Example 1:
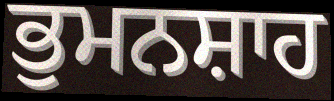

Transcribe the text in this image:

ਭੁਮਨਸ਼ਾਹ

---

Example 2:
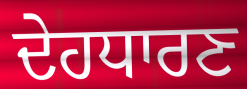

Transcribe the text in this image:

ਦੇਹਧਾਰਣ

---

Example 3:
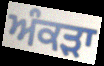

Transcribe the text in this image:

ਅੰਕੜਾ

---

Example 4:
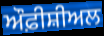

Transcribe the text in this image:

ਔਫ਼ੀਸ਼ੀਅਲ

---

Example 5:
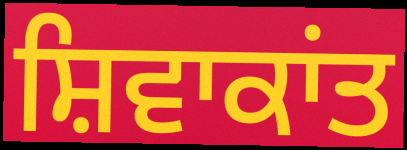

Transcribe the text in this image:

ਸ਼ਿਵਾਕਾਂਤ